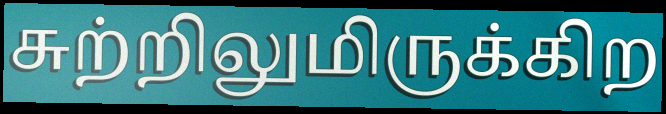
சுற்றிலுமிருக்கிற